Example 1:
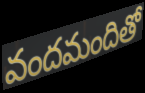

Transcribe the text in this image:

వందమందితో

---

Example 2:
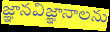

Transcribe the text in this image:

జ్ఞానవిజ్ఞానాలను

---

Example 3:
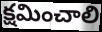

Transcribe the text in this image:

క్షమించాలి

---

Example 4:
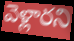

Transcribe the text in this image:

వెళ్లారని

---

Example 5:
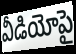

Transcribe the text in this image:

వీడియోపై